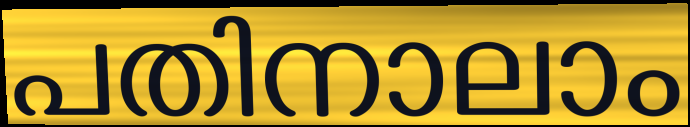
പതിനാലാം